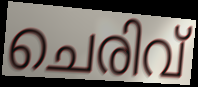
ചെരിവ്